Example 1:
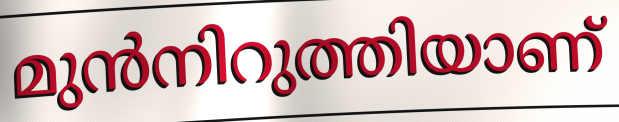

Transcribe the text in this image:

മുൻനിറുത്തിയാണ്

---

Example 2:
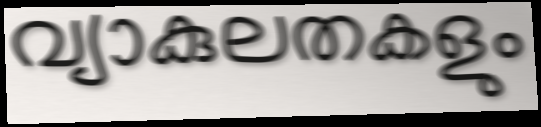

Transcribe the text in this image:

വ്യാകുലതകളും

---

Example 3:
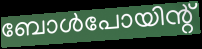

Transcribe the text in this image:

ബോൾപോയിന്റ്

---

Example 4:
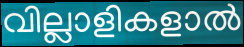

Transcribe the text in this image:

വില്ലാളികളാൽ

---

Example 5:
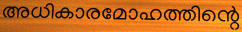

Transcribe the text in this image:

അധികാരമോഹത്തിന്റെ